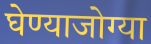
घेण्याजोग्या